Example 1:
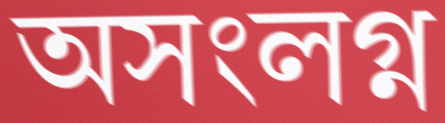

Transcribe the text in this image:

অসংলগ্ন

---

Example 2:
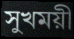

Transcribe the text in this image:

সুখময়ী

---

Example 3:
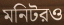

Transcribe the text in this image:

মনিটরও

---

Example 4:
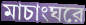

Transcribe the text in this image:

মাচাংঘরে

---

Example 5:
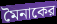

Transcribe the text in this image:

মৈনাকের